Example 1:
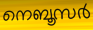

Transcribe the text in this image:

നെബൂസർ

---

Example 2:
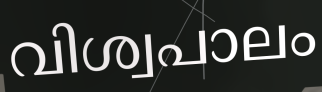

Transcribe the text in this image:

വിശ്വപാലം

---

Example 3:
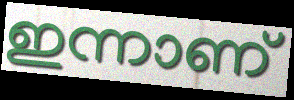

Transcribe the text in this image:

ഇന്നാണ്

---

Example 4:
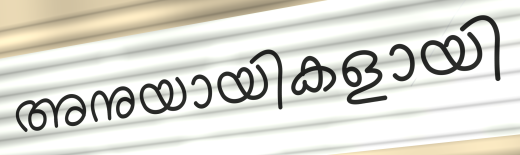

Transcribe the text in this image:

അനുയായികളായി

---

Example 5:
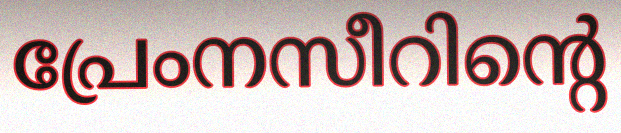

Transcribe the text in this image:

പ്രേംനസീറിന്റെ